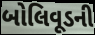
બોલિવૂડની